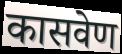
कासवेण